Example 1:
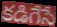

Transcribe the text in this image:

కడిగేసే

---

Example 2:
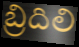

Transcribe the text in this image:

బ్రిదిలి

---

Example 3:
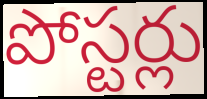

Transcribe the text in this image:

పోస్టర్లు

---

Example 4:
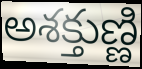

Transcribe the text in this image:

అశక్తుణ్ణి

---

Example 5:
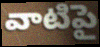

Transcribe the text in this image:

వాటిపై